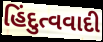
હિંદુત્વવાદી